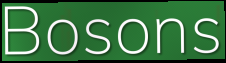
Bosons